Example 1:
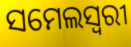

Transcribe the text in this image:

ସମେଲସ୍ୱରୀ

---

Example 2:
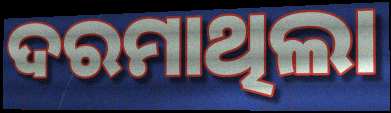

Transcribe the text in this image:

ଦରମାଥିଲା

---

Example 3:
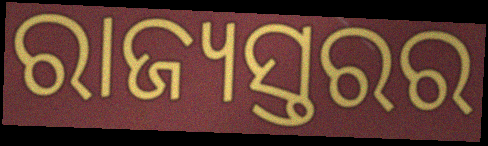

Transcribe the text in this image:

ରାଜ୍ୟସ୍ତରର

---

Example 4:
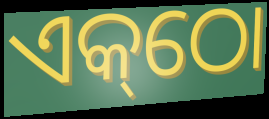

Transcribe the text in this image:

ଏକ୍‌ଠୋ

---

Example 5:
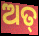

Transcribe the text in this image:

ଅତ୍